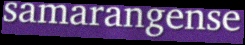
samarangense